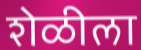
शेळीला